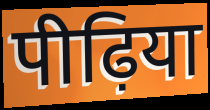
पीढ़िया